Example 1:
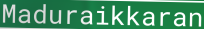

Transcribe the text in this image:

Maduraikkaran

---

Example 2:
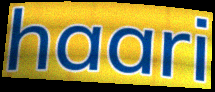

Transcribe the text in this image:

haari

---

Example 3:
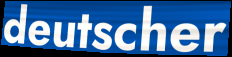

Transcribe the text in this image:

deutscher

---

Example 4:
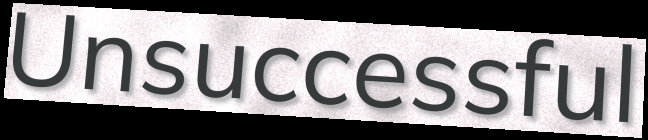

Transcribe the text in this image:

Unsuccessful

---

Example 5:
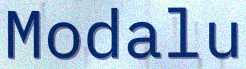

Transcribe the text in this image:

Modalu